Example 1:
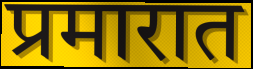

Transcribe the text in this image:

प्रमारात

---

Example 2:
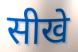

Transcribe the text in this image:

सीखे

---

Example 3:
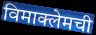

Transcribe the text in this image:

विमाक्लेमची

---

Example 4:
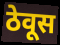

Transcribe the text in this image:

ठेवूस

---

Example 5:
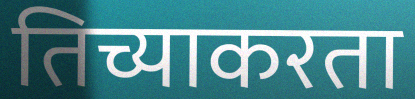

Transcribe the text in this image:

तिच्याकरता